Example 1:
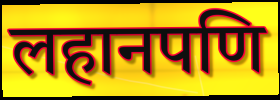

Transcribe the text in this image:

लहानपणि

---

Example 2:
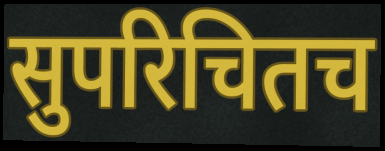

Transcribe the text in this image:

सुपरिचितच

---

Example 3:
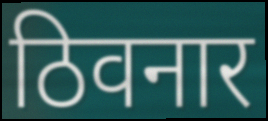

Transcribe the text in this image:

ठिवनार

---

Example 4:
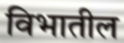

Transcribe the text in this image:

विभातील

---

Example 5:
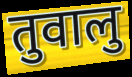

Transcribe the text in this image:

तुवालु